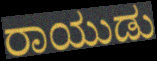
ರಾಯುಡು